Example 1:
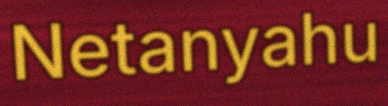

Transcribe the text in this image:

Netanyahu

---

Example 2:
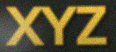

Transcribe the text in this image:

XYZ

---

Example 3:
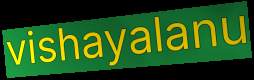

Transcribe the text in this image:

vishayalanu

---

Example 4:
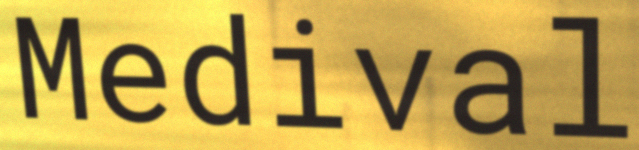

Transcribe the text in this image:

Medival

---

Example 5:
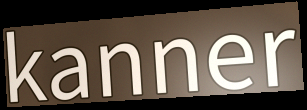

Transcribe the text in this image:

kanner